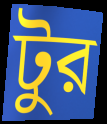
টুর